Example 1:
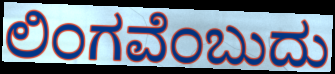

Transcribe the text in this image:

ಲಿಂಗವೆಂಬುದು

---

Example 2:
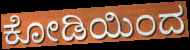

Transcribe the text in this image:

ಕೋಡಿಯಿಂದ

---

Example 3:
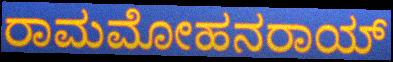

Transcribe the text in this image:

ರಾಮಮೋಹನರಾಯ್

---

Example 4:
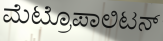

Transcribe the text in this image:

ಮೆಟ್ರೊಪಾಲಿಟನ್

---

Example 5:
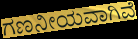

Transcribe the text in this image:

ಗಣನೀಯವಾಗಿವೆ